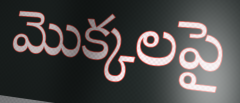
మొక్కలపై